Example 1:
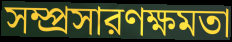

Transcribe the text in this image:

সম্প্রসারণক্ষমতা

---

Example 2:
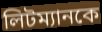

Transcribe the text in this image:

লিটম্যানকে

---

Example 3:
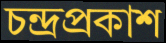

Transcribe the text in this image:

চন্দ্রপ্রকাশ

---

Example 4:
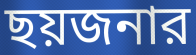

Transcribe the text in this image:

ছয়জনার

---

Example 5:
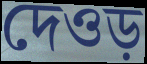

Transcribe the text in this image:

দেওড়